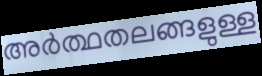
അർത്ഥതലങ്ങളുള്ള